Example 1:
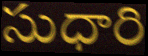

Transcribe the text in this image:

సుధారి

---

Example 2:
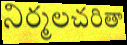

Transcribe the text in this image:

నిర్మలచరితా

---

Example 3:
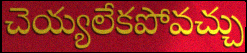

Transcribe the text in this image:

చెయ్యలేకపోవచ్చు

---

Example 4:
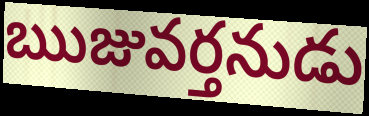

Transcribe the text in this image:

ఋజువర్తనుడు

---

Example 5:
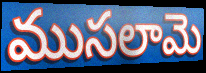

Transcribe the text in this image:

ముసలామె